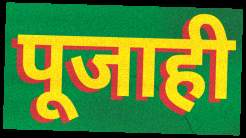
पूजाही